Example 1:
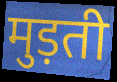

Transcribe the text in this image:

मुड़ती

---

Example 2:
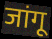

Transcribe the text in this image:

जांगू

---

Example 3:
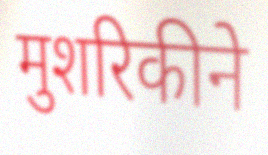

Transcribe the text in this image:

मुशरिकीने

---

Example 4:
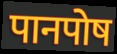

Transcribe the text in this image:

पानपोष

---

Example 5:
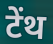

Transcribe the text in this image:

टेंथ